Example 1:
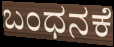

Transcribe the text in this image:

ಬಂಧನಕೆ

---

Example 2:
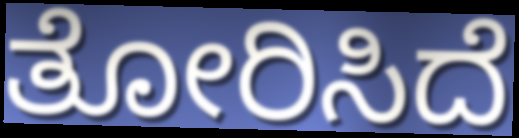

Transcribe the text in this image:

ತೋರಿಸಿದೆ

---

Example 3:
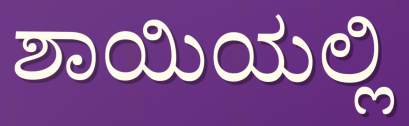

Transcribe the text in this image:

ಶಾಯಿಯಲ್ಲಿ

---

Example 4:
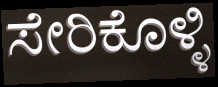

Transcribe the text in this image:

ಸೇರಿಕೊಳ್ಳಿ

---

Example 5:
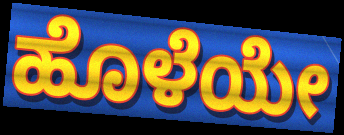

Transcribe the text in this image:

ಹೊಳೆಯೇ